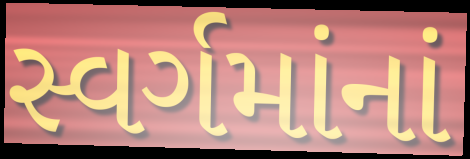
સ્વર્ગમાંનાં